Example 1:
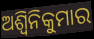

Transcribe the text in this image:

ଅଶ୍ୱିନିକୁମାର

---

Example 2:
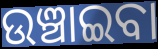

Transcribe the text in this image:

ଉଞ୍ଚାଇବା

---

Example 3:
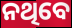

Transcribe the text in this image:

ନଥିବେ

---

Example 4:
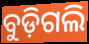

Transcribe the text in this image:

ବୁଡ଼ିଗଲି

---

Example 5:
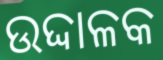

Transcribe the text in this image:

ଉଦ୍ଦାଳକ